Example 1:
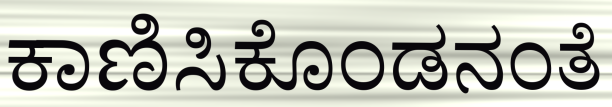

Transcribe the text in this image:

ಕಾಣಿಸಿಕೊಂಡನಂತೆ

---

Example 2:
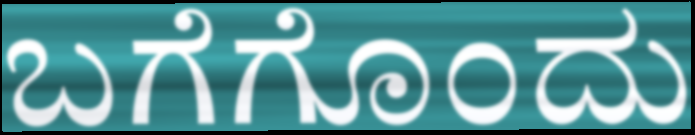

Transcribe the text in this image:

ಬಗೆಗೊಂದು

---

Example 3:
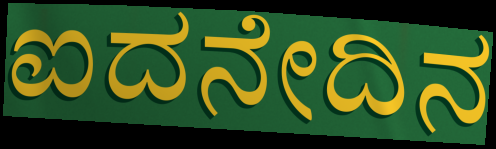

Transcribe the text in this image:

ಐದನೇದಿನ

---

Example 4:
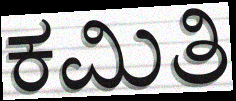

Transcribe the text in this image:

ಕಮಿತಿ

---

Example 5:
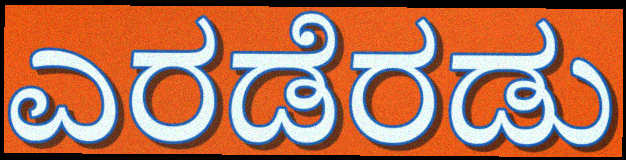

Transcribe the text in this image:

ಎರಡೆರಡು